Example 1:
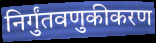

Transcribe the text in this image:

निर्गुंतवणुकीकरण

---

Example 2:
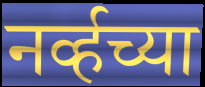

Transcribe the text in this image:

नर्व्हच्या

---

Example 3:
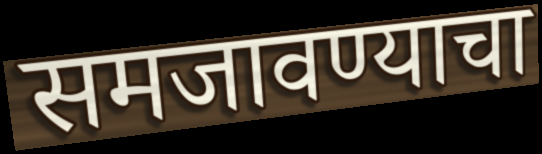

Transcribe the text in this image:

समजावण्याचा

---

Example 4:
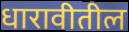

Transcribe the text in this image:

धारावीतील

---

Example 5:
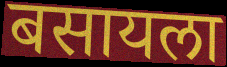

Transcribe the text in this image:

बसायला